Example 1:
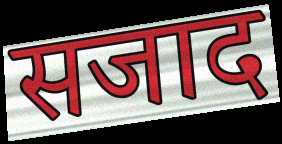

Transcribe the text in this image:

सजाद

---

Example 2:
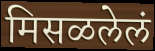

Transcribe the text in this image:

मिसळलेलं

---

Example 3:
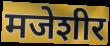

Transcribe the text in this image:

मजेशीर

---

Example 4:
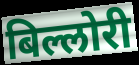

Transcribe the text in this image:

बिल्लोरी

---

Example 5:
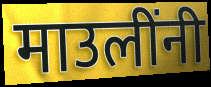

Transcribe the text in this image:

माउलींनी